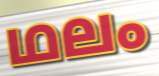
ഥലം